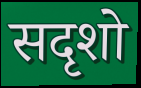
सदृशो